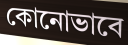
কোনোভাবে